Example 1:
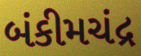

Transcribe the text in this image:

બંકીમચંદ્ર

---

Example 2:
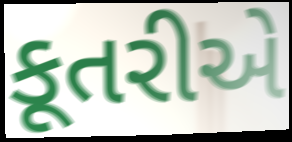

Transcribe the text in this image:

કૂતરીએ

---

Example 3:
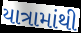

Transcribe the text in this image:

યાત્રામાંથી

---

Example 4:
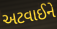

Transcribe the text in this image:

અટવાઈને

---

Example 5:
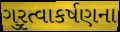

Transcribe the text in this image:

ગુરૃત્વાકર્ષણના